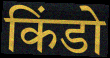
किंडो